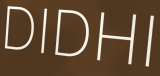
DIDHI